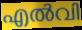
എൽവി